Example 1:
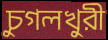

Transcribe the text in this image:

চুগলখুরী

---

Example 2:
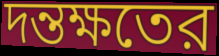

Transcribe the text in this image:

দন্তক্ষতের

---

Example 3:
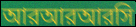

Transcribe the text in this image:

আরআরআরসি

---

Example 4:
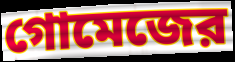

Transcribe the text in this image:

গোমেজের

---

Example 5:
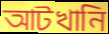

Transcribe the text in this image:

আটখানি